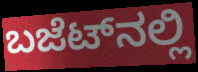
ಬಜೆಟ್‌ನಲ್ಲಿ